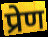
प्रेण